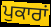
ਪੁਕਾਰਾਂ